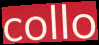
collo